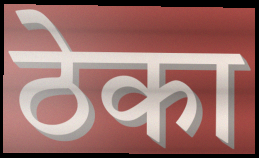
ठेका